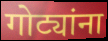
गोट्यांना